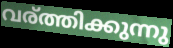
വര്ത്തിക്കുന്നു